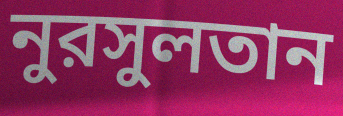
নুরসুলতান